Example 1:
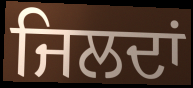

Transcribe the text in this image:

ਜਿਲਦਾਂ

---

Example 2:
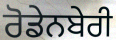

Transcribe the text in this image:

ਰੋਡੇਨਬੇਰੀ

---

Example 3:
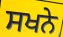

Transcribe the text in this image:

ਸਖਨੇ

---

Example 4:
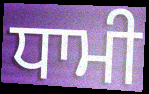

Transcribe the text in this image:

ਧਾਮੀ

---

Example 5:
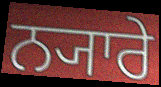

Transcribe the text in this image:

ਨ੍ਯਾਰੇ